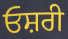
ਓਸ਼ਰੀ